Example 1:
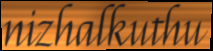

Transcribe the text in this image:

nizhalkuthu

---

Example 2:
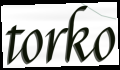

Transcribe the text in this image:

torko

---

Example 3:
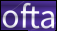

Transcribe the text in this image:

ofta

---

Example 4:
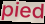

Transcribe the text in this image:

pied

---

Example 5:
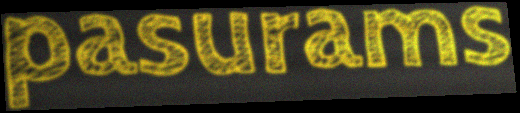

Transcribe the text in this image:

pasurams